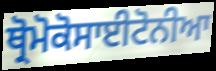
ਥ੍ਰੋਮੋਕੋਸਾਈਟੋਨੀਆ